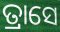
ତ୍ରାସେ